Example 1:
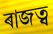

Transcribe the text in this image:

ৰাজত্ব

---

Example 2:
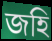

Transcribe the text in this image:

জহি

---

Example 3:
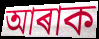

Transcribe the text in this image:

আৰাক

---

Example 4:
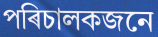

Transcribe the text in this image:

পৰিচালকজনে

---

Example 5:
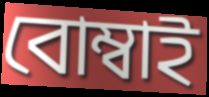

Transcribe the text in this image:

বোম্বাই